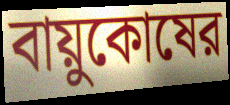
বায়ুকোষের